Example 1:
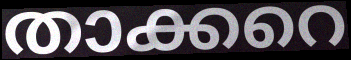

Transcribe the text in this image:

താക്കറെ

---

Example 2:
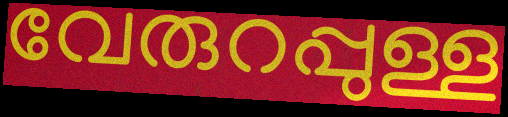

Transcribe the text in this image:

വേരുറപ്പുള്ള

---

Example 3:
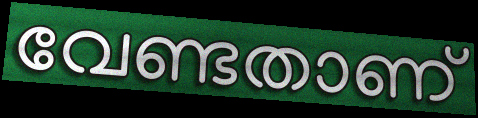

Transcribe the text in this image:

വേണ്ടതാണ്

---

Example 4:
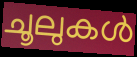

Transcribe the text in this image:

ചൂലുകൾ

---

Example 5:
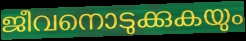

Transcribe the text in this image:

ജീവനൊടുക്കുകയും